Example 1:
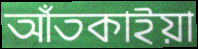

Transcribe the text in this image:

আঁতকাইয়া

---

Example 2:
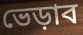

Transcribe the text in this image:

ভেড়াব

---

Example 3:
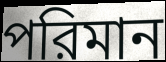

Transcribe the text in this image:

পরিমান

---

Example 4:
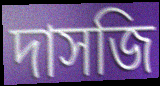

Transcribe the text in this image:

দাসজি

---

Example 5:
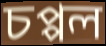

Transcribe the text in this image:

চপ্পল